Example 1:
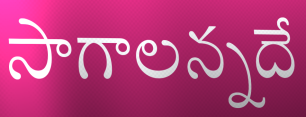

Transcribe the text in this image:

సాగాలన్నదే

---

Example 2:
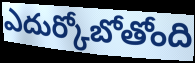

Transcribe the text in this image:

ఎదుర్కోబోతోంది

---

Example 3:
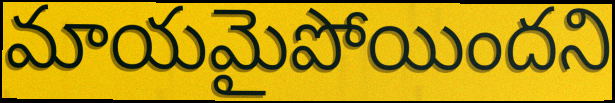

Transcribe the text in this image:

మాయమైపోయిందని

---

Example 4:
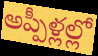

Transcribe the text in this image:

అప్పీళ్లల్లో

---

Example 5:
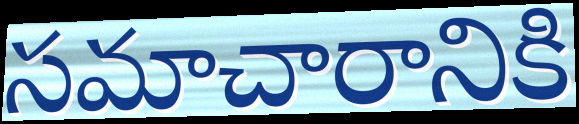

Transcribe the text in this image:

సమాచారానికి